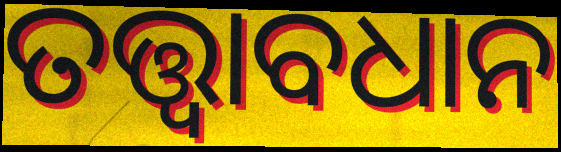
ତତ୍ତ୍ବାବଧାନ